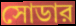
সোডার